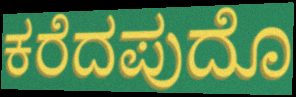
ಕರೆದಪುದೊ